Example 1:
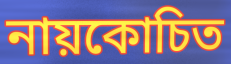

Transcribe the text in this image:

নায়কোচিত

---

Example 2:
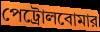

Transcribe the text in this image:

পেট্রোলবোমার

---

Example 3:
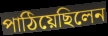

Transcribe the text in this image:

পাঠিয়েছিলেন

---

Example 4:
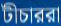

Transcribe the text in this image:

টীচাররা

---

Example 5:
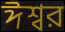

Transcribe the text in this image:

ঈশ্বর